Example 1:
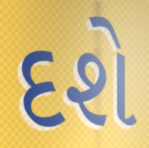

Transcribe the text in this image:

દશે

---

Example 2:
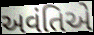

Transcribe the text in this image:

અવંતિએ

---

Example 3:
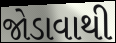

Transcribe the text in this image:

જોડાવાથી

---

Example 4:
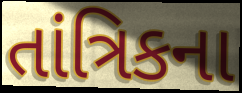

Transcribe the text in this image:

તાંત્રિકના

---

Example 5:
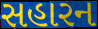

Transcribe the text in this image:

સહારન